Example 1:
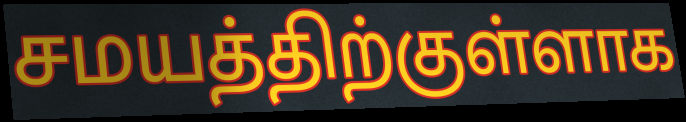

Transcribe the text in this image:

சமயத்திற்குள்ளாக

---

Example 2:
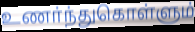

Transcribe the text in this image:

உணர்ந்துகொள்ளும்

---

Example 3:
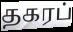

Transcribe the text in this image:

தகரப்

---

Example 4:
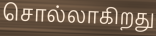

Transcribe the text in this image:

சொல்லாகிறது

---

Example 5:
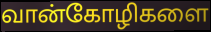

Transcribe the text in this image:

வான்கோழிகளை